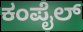
ಕಂಪೈಲ್